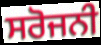
ਸਰੋਜਨੀ